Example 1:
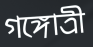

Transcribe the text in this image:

গঙ্গোত্ৰী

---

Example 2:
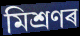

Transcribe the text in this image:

মিশ্ৰণৰ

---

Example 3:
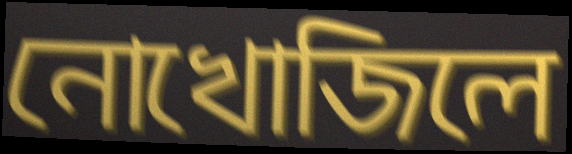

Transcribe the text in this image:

নোখোজিলে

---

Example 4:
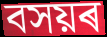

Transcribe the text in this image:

বসয়ৰ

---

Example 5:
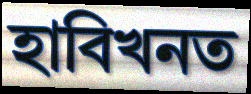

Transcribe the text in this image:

হাবিখনত